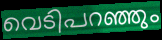
വെടിപറഞ്ഞും